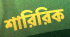
শারিরিক